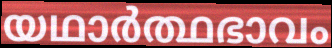
യഥാർത്ഥഭാവം